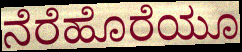
ನೆರೆಹೊರೆಯೂ